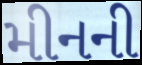
મીનની